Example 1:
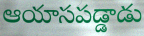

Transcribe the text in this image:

ఆయాసపడ్డాడు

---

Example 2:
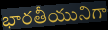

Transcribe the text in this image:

భారతీయునిగా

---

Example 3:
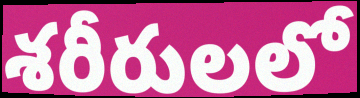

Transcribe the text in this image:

శరీరులలో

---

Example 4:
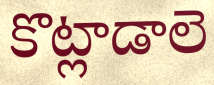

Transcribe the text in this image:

కొట్లాడాలె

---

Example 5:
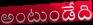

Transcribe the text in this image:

అంటుండేది